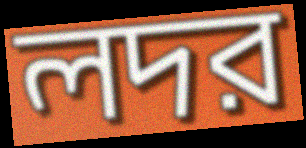
লদর